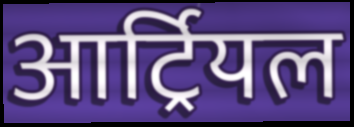
आर्ट्रियल